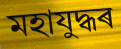
মহাযুদ্ধৰ